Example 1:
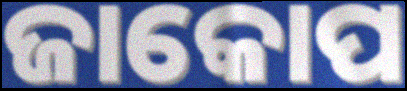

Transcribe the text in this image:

ଜାକୋପ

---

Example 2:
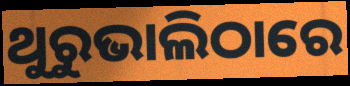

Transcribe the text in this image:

ଥୁରୁଭାଲିଠାରେ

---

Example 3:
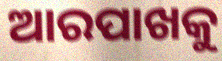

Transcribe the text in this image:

ଆରପାଖକୁ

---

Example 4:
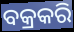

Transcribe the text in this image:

ବକ୍ରକରି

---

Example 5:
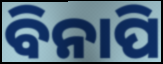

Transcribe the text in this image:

ବିନାପି